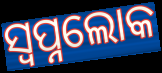
ସ୍ଵପ୍ନଲୋକ